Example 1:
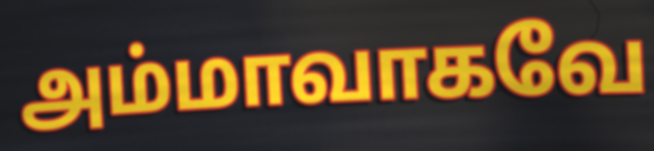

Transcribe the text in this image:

அம்மாவாகவே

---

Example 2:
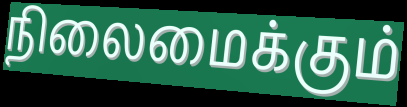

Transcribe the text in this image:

நிலைமைக்கும்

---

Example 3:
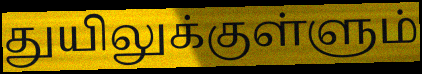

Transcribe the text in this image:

துயிலுக்குள்ளும்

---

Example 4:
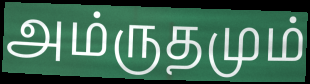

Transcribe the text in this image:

அம்ருதமும்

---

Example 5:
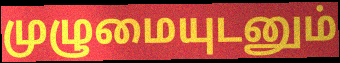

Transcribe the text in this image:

முழுமையுடனும்